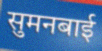
सुमनबाई